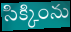
సిక్కింను